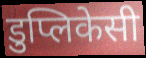
डुप्लिकेसी